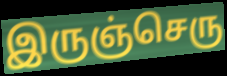
இருஞ்செரு